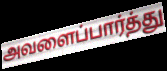
அவளைப்பார்த்து